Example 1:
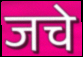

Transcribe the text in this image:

जचे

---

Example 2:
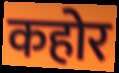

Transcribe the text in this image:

कहोर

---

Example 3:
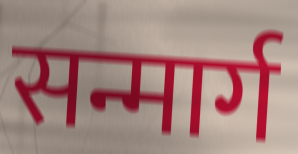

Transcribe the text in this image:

सन्मार्ग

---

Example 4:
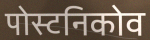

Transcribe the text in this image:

पोस्टनिकोव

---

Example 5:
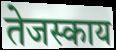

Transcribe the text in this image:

तेजस्काय